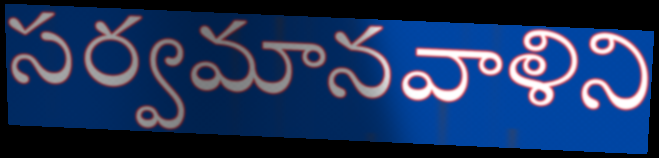
సర్వమానవాళిని